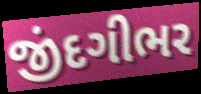
જીંદગીભર